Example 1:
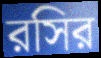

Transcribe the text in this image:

রসির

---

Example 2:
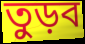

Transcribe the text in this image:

তুড়ব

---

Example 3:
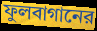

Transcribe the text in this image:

ফুলবাগানের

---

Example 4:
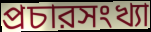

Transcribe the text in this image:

প্রচারসংখ্যা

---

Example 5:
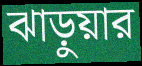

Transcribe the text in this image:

ঝাড়ুয়ার